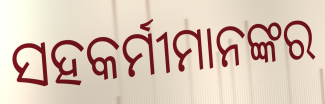
ସହକର୍ମୀମାନଙ୍କର